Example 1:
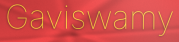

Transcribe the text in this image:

Gaviswamy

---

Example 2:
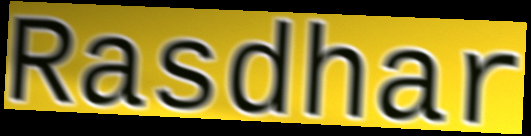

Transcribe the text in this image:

Rasdhar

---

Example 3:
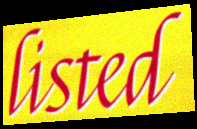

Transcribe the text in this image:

listed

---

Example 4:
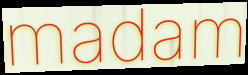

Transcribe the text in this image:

madam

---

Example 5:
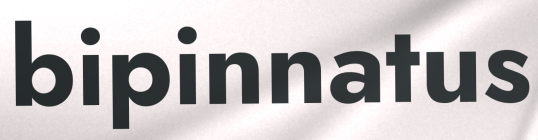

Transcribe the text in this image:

bipinnatus